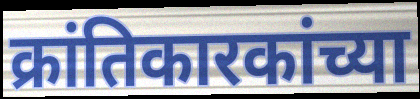
क्रांतिकारकांच्या